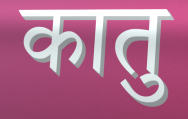
कातु